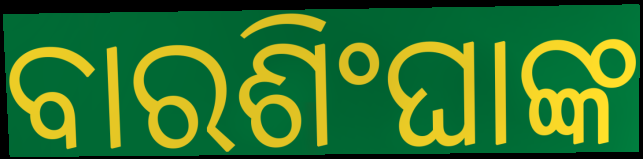
ବାରଶିଂଘାଙ୍କ